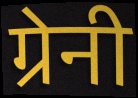
ग्रेनी